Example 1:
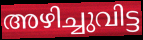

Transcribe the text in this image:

അഴിച്ചുവിട്ട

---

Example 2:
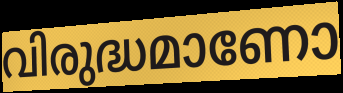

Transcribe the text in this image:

വിരുദ്ധമാണോ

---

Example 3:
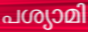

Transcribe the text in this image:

പശ്യാമി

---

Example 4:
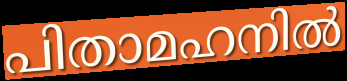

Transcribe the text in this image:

പിതാമഹനിൽ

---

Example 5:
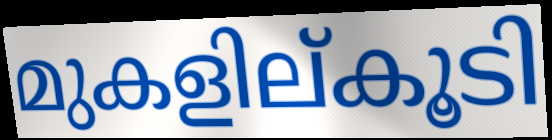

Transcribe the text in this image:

മുകളില്കൂടി